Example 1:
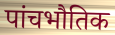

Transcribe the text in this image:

पांचभौतिक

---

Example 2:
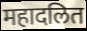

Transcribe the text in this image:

महादलित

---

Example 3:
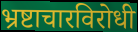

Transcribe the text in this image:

भ्रष्टाचारविरोधी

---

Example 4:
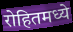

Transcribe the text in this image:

रोहितमध्ये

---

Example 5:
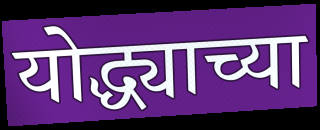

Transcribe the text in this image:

योद्ध्याच्या